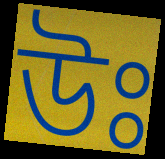
উঃ